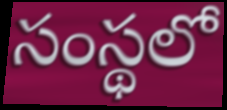
సంస్థలో